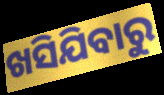
ଖସିଯିବାରୁ